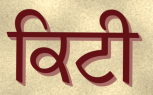
ਕਿਟੀ